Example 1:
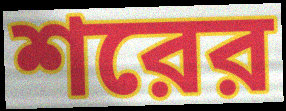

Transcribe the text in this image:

শরের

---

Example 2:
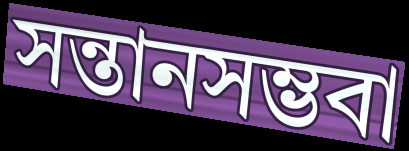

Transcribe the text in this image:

সন্তানসম্ভবা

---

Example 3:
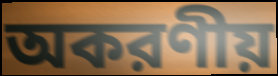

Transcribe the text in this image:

অকরণীয়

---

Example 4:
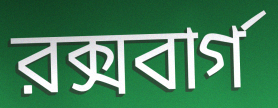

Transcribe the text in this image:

রক্সবার্গ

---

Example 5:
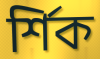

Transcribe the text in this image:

র্শিক